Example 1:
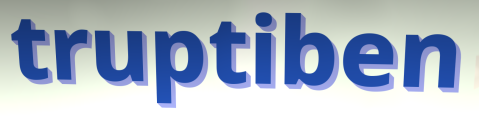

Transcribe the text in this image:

truptiben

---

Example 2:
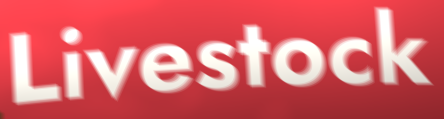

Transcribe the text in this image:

Livestock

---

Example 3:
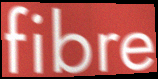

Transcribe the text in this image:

fibre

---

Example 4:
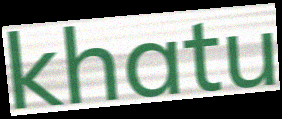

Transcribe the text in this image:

khatu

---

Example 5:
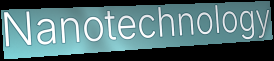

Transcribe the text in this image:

Nanotechnology